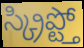
స్క్రిప్ట్తో